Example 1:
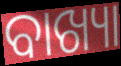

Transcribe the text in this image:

ବାଖ୍ୟା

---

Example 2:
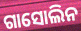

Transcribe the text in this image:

ଗାସୋଲିନ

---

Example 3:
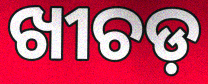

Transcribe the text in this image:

ଖୀଚଡ଼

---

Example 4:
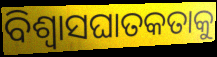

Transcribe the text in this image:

ବିଶ୍ୱାସଘାତକତାକୁ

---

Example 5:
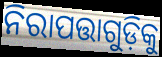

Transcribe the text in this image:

ନିରାପତ୍ତାଗୁଡ଼ିକୁ